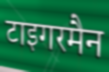
टाइगरमैन